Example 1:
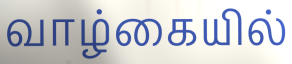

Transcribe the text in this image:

வாழ்கையில்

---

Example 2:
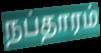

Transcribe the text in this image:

நப்தாரம்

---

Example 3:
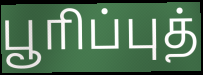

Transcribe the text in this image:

பூரிப்புத்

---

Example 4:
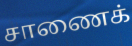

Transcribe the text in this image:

சாணைக்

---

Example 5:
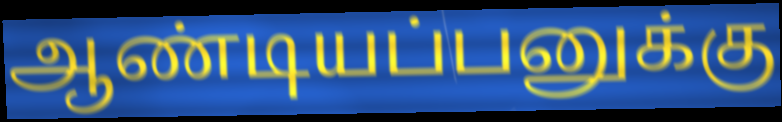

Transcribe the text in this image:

ஆண்டியப்பனுக்கு